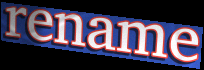
rename